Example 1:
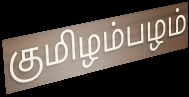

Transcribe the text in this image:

குமிழம்பழம்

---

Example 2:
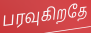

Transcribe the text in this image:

பரவுகிறதே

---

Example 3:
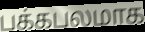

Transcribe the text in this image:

பக்கபலமாக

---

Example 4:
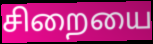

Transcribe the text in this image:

சிறையை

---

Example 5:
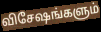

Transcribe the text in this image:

விசேஷங்களும்